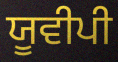
ਯੂਵੀਪੀ